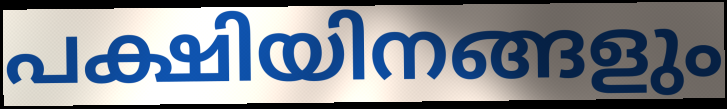
പക്ഷിയിനങ്ങളും